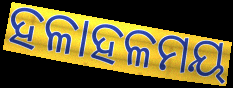
ହଳାହଳମୟ